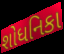
શોધનિકા